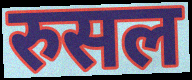
रुसल